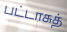
பட்டாசுத்